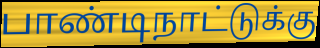
பாண்டிநாட்டுக்கு